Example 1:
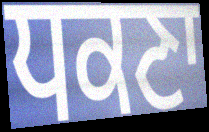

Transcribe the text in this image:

ਧਕਣਾ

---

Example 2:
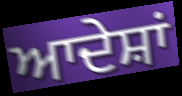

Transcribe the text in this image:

ਆਦੇਸ਼ਾਂ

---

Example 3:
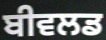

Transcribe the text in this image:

ਬੀਵਲਡ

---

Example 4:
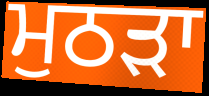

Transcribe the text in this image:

ਮੁਠੜਾ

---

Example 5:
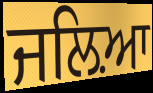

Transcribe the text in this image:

ਜਲ਼ਿਆ